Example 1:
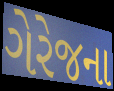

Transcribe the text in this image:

ગેરેજના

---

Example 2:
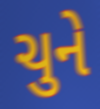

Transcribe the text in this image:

ચુને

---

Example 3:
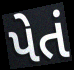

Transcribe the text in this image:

પેતં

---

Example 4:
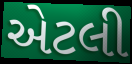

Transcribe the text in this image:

એટલી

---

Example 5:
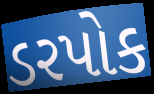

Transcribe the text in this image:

ડરપોક